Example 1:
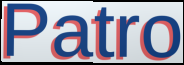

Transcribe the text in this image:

Patro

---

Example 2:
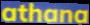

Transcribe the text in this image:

athana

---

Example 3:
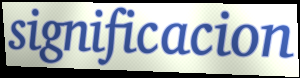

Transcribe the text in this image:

significacion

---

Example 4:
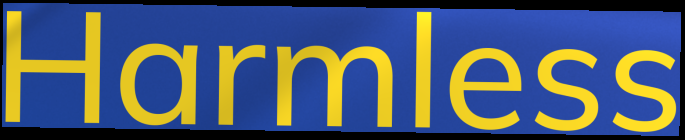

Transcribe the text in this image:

Harmless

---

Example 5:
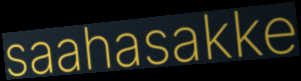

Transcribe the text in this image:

saahasakke